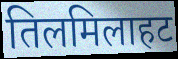
तिलमिलाहट